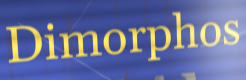
Dimorphos